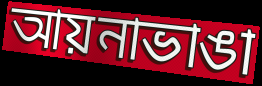
আয়নাভাঙা